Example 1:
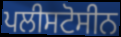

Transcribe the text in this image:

ਪਲੀਸਟੋਸੀਨ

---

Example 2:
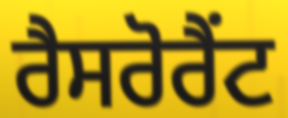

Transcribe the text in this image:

ਰੈਸਰੋਰੈਂਟ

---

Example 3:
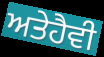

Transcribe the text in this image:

ਅਤੇਹੈਵੀ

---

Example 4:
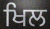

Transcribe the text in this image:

ਖਿਲ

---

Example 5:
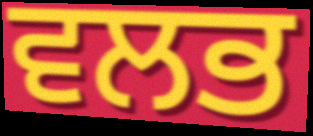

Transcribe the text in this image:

ਵਲਭ